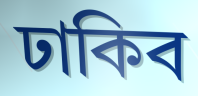
ঢাকিব